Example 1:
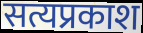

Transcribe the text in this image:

सत्यप्रकाश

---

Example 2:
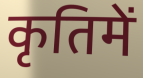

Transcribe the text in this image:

कृतिमें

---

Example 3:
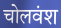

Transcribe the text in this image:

चोलवंश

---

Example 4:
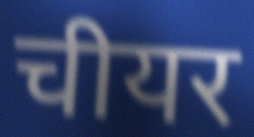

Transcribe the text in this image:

चीयर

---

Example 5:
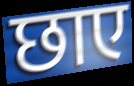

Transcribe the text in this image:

छाए